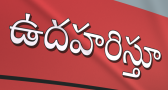
ఉదహరిస్తూ